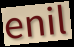
enil